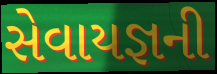
સેવાયજ્ઞની